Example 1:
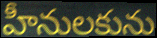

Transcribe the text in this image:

హీనులకును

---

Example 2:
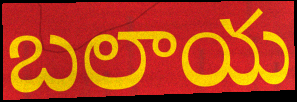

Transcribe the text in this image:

బలాయ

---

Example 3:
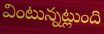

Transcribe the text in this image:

వింటున్నట్లుంది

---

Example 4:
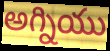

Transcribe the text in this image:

అగ్నియు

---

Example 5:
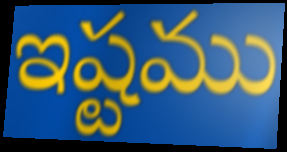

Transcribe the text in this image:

ఇష్టము